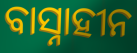
ବାସ୍ନାହୀନ